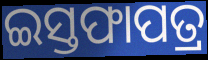
ଇସ୍ତଫାପତ୍ର